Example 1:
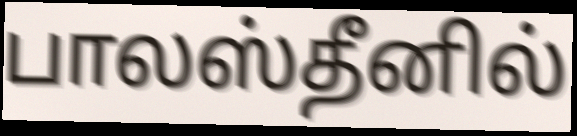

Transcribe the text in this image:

பாலஸ்தீனில்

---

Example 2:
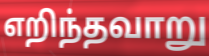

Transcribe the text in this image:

எறிந்தவாறு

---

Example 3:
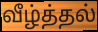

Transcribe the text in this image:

வீழ்த்தல்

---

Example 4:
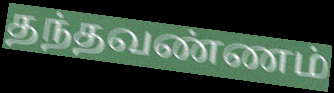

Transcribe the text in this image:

தந்தவண்ணம்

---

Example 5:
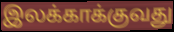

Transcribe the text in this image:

இலக்காக்குவது